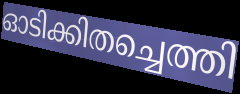
ഓടിക്കിതച്ചെത്തി